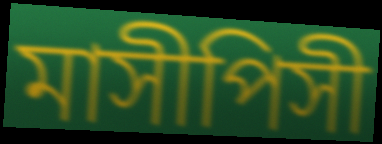
মাসীপিসী